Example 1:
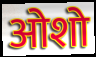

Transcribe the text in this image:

ओशो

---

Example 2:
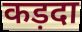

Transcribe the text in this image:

कड़दा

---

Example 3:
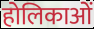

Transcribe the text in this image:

होलिकाओं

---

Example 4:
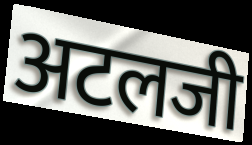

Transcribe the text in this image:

अटलजी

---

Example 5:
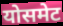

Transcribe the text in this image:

योसमेट